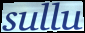
sullu